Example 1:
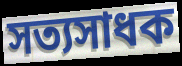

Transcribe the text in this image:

সত্যসাধক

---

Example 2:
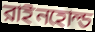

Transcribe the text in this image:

রাইনহোল্ড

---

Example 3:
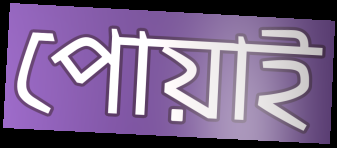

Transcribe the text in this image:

পোয়াই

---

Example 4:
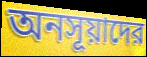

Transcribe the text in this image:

অনসূয়াদের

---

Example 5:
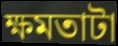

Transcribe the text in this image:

ক্ষমতাটা